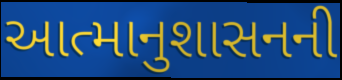
આત્માનુશાસનની